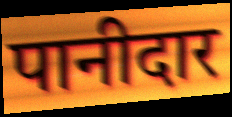
पानीदार